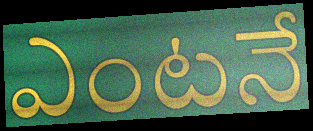
ఎంటనే